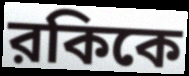
রকিকে